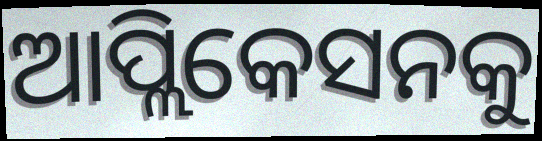
ଆପ୍ଲିକେସନକୁ